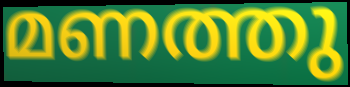
മണത്തു